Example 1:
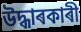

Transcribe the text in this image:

উদ্ধাৰকাৰী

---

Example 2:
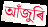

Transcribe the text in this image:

আঁজুৰি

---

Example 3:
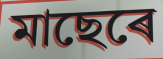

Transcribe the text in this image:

মাছেৰে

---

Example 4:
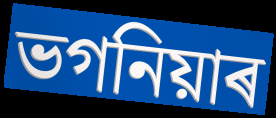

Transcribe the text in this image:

ভগনিয়াৰ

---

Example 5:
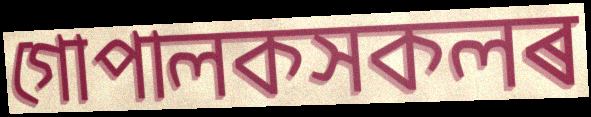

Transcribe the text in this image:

গোপালকসকলৰ